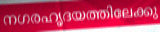
നഗരഹൃദയത്തിലേക്കു